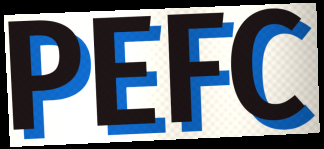
PEFC